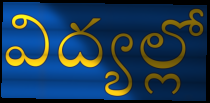
విద్యల్లో